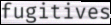
fugitives